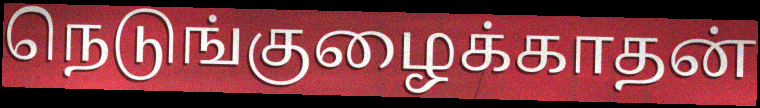
நெடுங்குழைக்காதன்